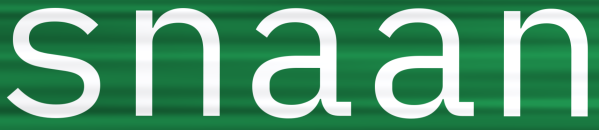
snaan